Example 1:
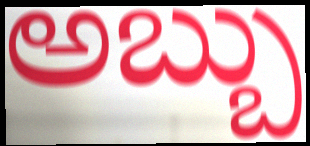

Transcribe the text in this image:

అబ్బు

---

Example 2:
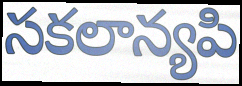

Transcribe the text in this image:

సకలాన్యపి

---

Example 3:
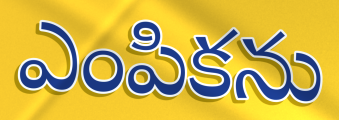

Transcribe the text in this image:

ఎంపికను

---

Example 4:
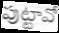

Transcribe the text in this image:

పుట్టావో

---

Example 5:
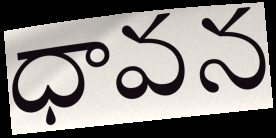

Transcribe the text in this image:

ధావన